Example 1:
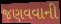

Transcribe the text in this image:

જણવવાની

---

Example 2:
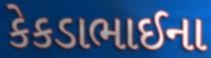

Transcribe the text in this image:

કેકડાભાઈના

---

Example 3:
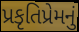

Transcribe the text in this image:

પ્રકૃતિપ્રેમનું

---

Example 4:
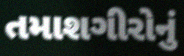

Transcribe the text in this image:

તમાશગીરોનું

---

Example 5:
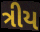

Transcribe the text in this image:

ત્રીય